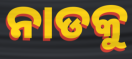
ନାଡକୁ